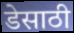
डेसाठी